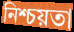
নিশ্চয়তা